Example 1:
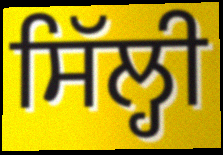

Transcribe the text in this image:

ਸਿੱਲ੍ਹੀ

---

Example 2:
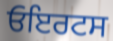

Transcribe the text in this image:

ਓਇਰਟਸ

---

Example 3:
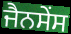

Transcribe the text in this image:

ਜੈਨਸੇਂਸ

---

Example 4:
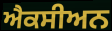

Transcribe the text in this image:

ਐਕਸੀਅਨ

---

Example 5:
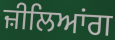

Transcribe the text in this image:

ਜ਼ੀਲਿਆਂਗ